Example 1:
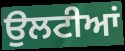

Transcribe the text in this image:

ਉਲਟੀਆਂ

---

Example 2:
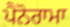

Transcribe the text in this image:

ਪੈਨੋਰਾਮਾ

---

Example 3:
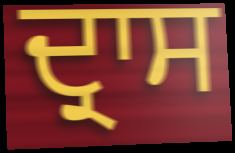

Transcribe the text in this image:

ਦ੍ਰਾਸ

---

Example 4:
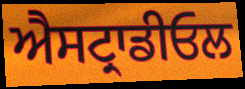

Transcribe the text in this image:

ਐਸਟ੍ਰਾਡੀਓਲ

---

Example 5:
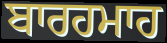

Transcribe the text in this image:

ਬਾਰਹਮਾਹ